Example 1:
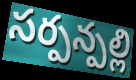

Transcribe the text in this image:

సర్పన్పల్లి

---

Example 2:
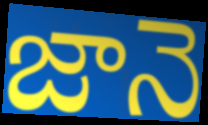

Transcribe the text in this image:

జానె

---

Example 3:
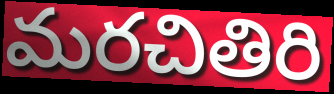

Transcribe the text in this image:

మరచితిరి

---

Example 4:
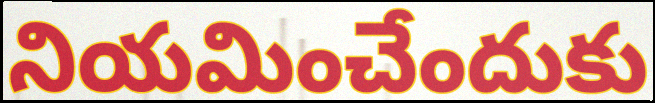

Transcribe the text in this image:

నియమించేందుకు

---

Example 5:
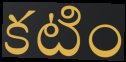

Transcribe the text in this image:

కటిం